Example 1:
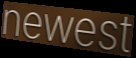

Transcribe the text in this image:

newest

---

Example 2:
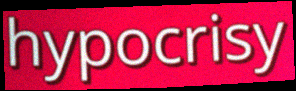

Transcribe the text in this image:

hypocrisy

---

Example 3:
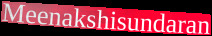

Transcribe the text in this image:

Meenakshisundaran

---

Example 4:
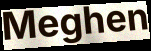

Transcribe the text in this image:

Meghen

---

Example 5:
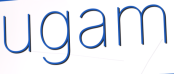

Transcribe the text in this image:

ugam